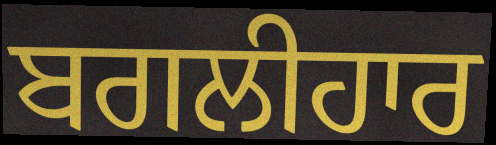
ਬਗਲੀਹਾਰ